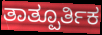
ತಾತ್ಪೂರ್ತಿಕ